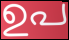
ഉപ